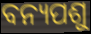
ବନ୍ୟପଶୁ